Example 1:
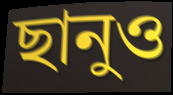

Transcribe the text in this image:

ছানুও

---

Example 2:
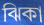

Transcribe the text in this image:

ঝিকা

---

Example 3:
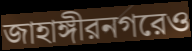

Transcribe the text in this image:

জাহাঙ্গীরনগরেও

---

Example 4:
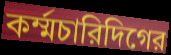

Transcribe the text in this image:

কর্ম্মচারিদিগের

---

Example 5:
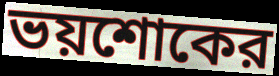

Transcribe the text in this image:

ভয়শোকের